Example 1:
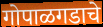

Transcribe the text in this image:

गोपाळगडाचे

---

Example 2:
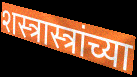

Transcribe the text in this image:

शस्त्रास्त्रांच्या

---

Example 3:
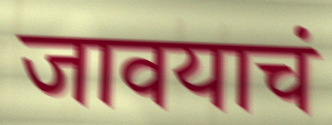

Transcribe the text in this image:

जावयाचं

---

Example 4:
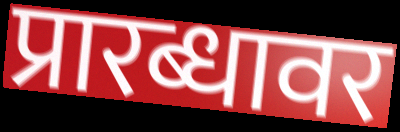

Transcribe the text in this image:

प्रारब्धावर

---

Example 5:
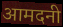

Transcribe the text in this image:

आमदनी